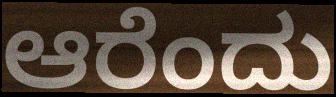
ಆರೆಂದು